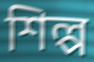
শিল্প